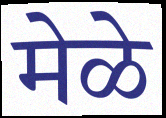
मेळे